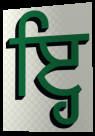
ਇ੍ਹ